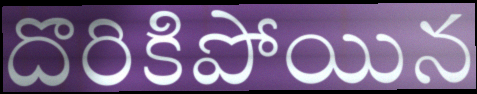
దొరికిపోయిన